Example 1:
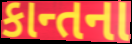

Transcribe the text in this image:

કાન્તના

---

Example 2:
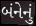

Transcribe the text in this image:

બંનેનું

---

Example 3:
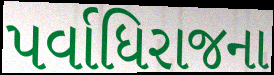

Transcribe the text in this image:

પર્વાધિરાજના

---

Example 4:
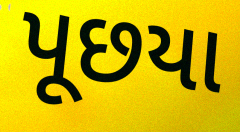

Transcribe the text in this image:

પૂછયા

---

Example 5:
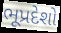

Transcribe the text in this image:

ભૂપ્રદેશો